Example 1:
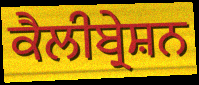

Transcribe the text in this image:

ਕੈਲੀਬ੍ਰੇਸ਼ਨ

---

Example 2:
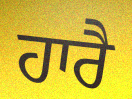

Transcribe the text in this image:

ਹਾਰੈ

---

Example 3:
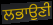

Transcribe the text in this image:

ਲਭਾਉਣੀ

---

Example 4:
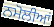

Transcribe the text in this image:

ਨਮੋਲੀਆਂ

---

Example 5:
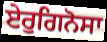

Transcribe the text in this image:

ਏਰੁਗਿਨੋਸਾ